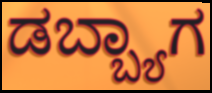
ಡಬ್ಬ್ಯಾಗ